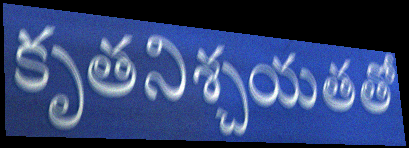
కృతనిశ్చయతతో